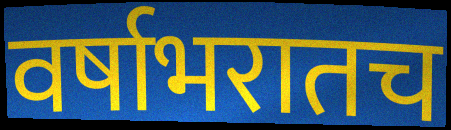
वर्षाभरातच